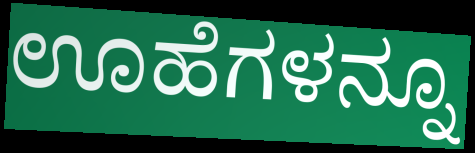
ಊಹೆಗಳನ್ನೂ